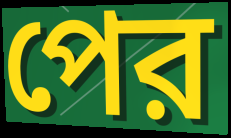
পের